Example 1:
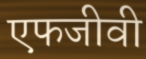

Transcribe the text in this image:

एफजीवी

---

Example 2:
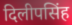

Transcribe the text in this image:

दिलीपसिंह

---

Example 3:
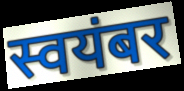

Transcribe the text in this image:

स्वयंबर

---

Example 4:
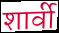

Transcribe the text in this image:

शार्वी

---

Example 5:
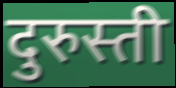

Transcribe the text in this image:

दुरुस्ती